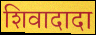
शिवादादा